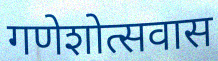
गणेशोत्सवास